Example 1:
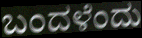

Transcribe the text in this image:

ಬಂದಳೆಂದು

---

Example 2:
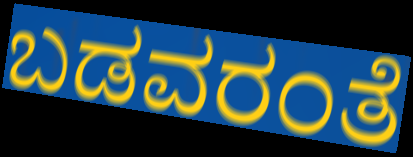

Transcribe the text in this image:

ಬಡವರಂತೆ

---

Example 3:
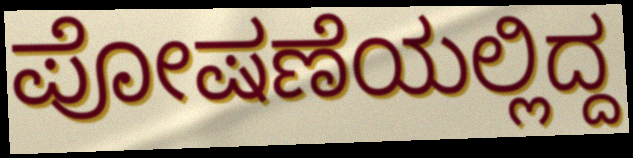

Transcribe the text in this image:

ಪೋಷಣೆಯಲ್ಲಿದ್ದ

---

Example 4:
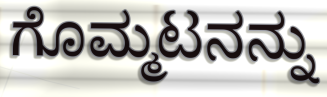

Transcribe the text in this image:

ಗೊಮ್ಮಟನನ್ನು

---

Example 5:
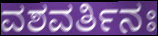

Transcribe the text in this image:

ವಶವರ್ತಿನಃ